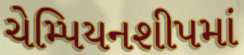
ચેમ્પિયનશીપમાં